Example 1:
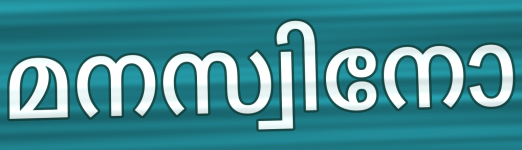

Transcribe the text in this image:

മനസ്വിനോ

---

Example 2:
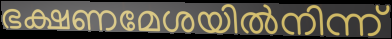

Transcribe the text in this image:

ഭക്ഷണമേശയിൽനിന്ന്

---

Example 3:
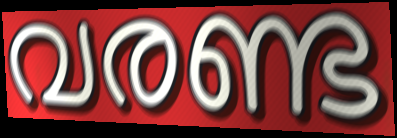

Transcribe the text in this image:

വരണ്ട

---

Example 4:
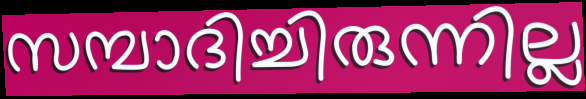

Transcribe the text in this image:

സമ്പാദിച്ചിരുന്നില്ല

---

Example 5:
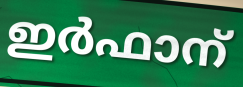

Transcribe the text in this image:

ഇർഫാന്